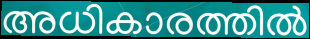
അധികാരത്തിൽ